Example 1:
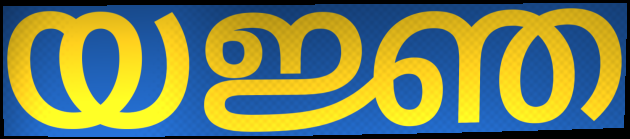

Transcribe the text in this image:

യജ്ഞ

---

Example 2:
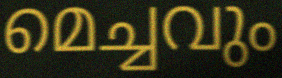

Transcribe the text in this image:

മെച്ചവും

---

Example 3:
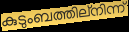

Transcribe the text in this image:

കുടുംബത്തില്നിന്ന്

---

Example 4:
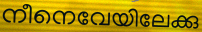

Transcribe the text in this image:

നീനെവേയിലേക്കു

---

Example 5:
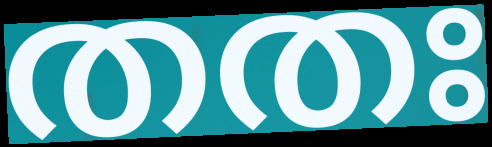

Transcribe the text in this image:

തതഃ